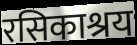
रसिकाश्रय